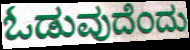
ಓಡುವುದೆಂದು